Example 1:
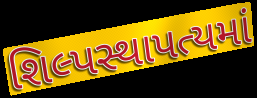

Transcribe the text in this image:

શિલ્પસ્થાપત્યમાં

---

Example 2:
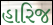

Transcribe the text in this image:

હારિજ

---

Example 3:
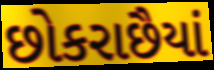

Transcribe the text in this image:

છોકરાછૈયાં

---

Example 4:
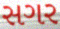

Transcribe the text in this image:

સગર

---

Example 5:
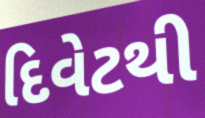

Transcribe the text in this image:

દિવેટથી